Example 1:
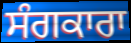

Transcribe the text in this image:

ਸੰਗਕਾਰਾ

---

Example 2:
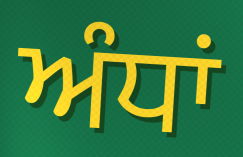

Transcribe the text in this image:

ਅੰਧਾਂ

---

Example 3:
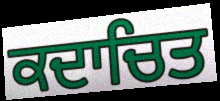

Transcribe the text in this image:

ਕਦਾਚਿਤ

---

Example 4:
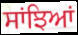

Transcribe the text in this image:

ਸਾਂਝਿਆਂ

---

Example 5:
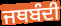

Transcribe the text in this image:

ਜਥਬੰਦੀ